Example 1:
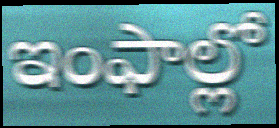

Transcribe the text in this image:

ఇంఫాల్లో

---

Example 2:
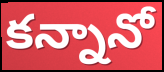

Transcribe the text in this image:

కన్నానో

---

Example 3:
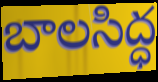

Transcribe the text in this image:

బాలసిద్ధ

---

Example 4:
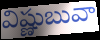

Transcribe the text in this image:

విష్ణుబువా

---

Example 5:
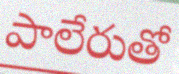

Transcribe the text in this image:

పాలేరుతో